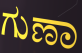
ಗುಣಾ